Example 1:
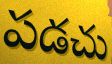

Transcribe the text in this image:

పడచు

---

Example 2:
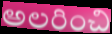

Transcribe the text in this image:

అలరించి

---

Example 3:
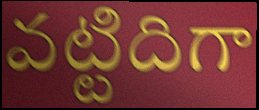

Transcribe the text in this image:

వట్టిదిగా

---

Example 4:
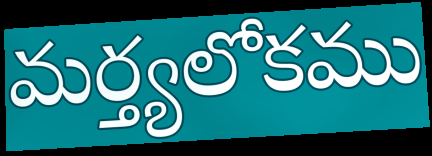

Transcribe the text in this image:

మర్త్యలోకము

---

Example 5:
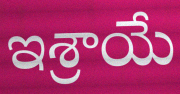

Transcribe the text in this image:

ఇశ్రాయే